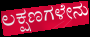
ಲಕ್ಷಣಗಳೇನು